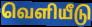
வெளியீடு